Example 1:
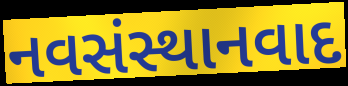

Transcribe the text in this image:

નવસંસ્થાનવાદ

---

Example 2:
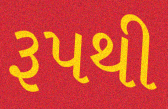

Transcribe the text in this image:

રૂપથી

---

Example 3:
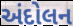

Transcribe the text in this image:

અંદોલન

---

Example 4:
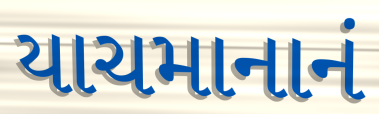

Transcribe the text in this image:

યાચમાનાનં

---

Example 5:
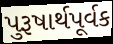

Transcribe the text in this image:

પુરૂષાર્થપૂર્વક